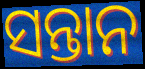
ସନ୍ତାନ